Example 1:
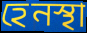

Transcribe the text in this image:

হেনস্থা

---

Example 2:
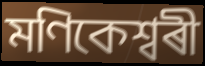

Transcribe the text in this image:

মণিকেশ্বৰী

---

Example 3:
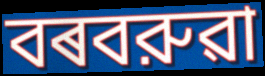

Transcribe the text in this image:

বৰবৰুৱা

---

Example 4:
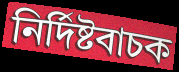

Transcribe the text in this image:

নিৰ্দিষ্টবাচক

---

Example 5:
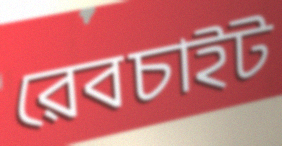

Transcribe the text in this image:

ৱেবচাইট